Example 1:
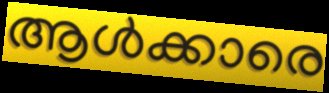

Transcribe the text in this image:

ആൾക്കാരെ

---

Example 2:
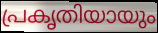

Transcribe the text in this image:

പ്രകൃതിയായും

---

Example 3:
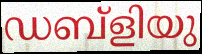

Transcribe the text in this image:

ഡബ്ളിയു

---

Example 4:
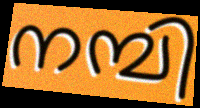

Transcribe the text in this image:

നമ്പി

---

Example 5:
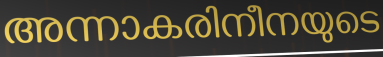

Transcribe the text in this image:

അന്നാകരിനീനയുടെ